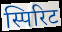
स्पिरिट